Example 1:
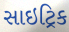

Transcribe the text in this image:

સાઇટ્રિક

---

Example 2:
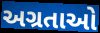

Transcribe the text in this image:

અગ્રતાઓ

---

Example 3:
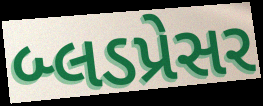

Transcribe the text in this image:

બ્લડપ્રેસર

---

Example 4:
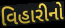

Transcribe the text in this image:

વિહારીનો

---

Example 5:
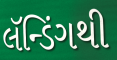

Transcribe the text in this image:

લૅન્ડિંગથી